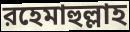
রহেমাহুল্লাহ